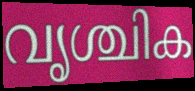
വൃശ്ചിക